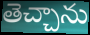
తెచ్చాను